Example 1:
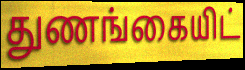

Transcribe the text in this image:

துணங்கையிட்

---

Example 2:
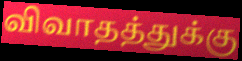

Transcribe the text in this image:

விவாதத்துக்கு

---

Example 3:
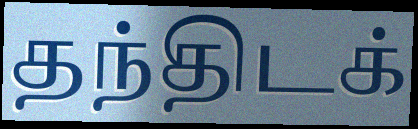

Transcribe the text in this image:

தந்திடக்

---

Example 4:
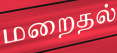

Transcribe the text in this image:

மறைதல்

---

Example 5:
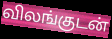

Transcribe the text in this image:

விலங்குடன்